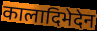
कालादिभेदेन